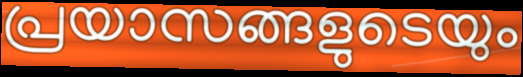
പ്രയാസങ്ങളുടെയും